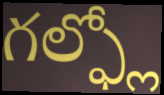
గల్ఫ్లో